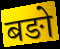
बङो